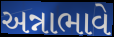
અન્નાભાવે